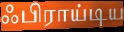
ஃபிராய்டிய